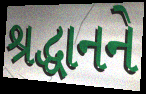
શ્રદ્ધાનને